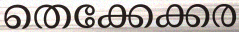
തെക്കേക്കര